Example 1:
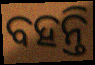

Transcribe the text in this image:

ବହନ୍ତି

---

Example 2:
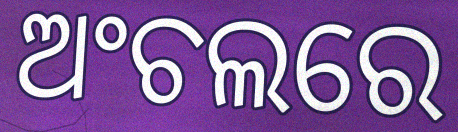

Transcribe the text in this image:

ଅଂଚଲରେ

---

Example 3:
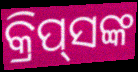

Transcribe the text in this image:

କ୍ରିପ୍‌ସଙ୍କ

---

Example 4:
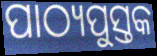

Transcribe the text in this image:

ପାଠ୍ୟପୁସ୍ତକ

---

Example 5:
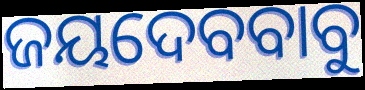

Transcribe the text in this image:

ଜୟଦେବବାବୁ